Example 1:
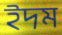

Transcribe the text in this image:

ইদম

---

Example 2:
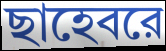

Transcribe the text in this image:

ছাহেবরে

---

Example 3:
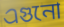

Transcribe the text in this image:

এগুনো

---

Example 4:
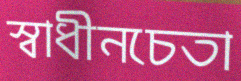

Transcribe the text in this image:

স্বাধীনচেতা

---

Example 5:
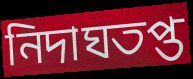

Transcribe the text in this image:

নিদাঘতপ্ত